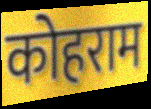
कोहराम